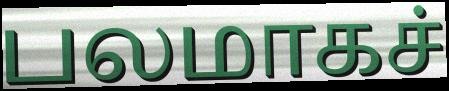
பலமாகச்